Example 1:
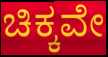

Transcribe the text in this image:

ಚಿಕ್ಕವೇ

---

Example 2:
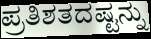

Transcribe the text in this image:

ಪ್ರತಿಶತದಷ್ಟನ್ನು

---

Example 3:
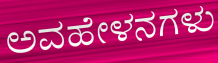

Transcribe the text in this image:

ಅವಹೇಳನಗಳು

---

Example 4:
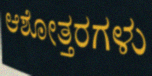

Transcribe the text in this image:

ಆಶೋತ್ತರಗಳು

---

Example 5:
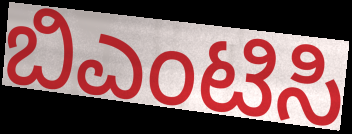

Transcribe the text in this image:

ಬಿಎಂಟಿಸಿ